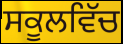
ਸਕੂਲਵਿੱਚ